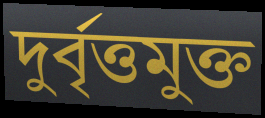
দুর্বৃত্তমুক্ত